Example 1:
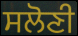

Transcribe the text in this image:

ਸਲੋਣੀ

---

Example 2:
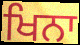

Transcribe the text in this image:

ਖਿਨਾ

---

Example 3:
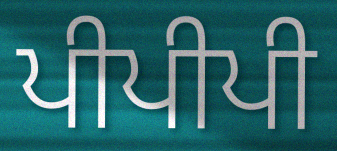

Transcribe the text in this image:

ਪੀਪੀਪੀ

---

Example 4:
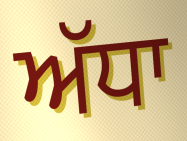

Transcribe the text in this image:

ਅੱਧਾ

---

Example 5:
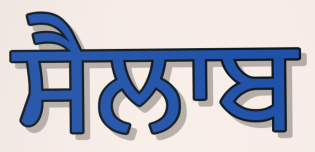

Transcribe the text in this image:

ਸੈਲਾਬ